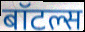
बॉटल्स